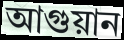
আগুয়ান